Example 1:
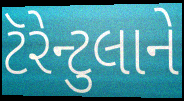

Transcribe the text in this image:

ટૅરેન્ટુલાને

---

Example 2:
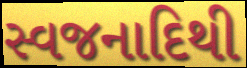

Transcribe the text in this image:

સ્વજનાદિથી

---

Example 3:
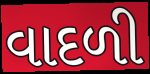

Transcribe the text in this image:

વાદળી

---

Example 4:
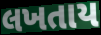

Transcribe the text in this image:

લખતાય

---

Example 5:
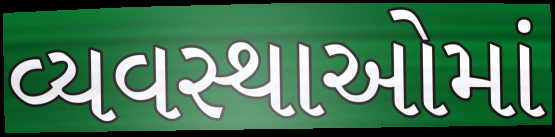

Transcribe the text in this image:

વ્યવસ્થાઓમાં